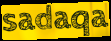
sadaqa